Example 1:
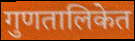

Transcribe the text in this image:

गुणतालिकेत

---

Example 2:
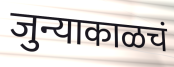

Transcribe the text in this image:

जुन्याकाळचं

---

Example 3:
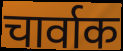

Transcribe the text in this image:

चार्वाक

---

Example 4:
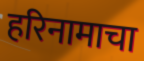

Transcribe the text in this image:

हरिनामाचा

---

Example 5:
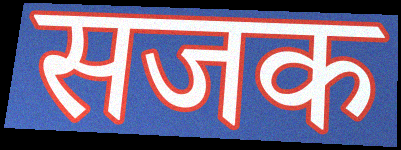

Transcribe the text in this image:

सजक